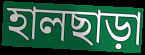
হালছাড়া